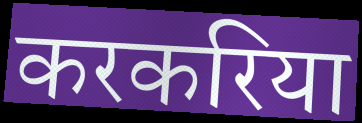
करकरिया